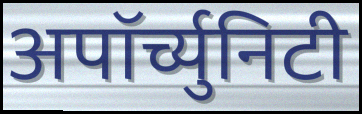
अपॉर्च्युनिटी